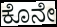
ಕೊನೇ